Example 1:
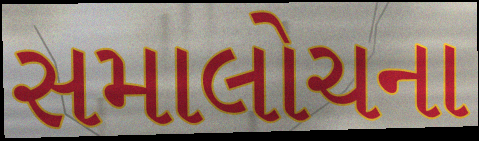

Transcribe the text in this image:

સમાલોચના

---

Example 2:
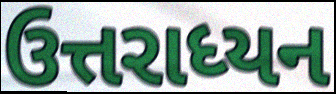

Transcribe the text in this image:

ઉત્તરાધ્યન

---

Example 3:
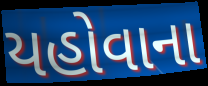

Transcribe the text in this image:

યહોવાના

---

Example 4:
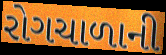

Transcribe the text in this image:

રોગચાળાની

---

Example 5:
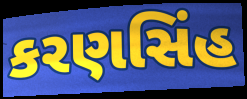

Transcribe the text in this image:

કરણસિંહ